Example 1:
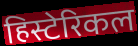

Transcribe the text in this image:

हिस्टेरिकल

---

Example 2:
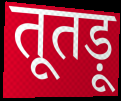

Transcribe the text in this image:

तूतड़ू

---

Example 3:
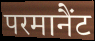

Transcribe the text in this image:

परमानैंट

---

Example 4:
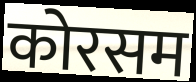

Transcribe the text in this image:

कोरसम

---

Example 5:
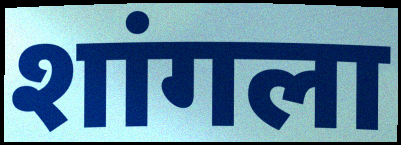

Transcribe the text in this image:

शांगला